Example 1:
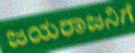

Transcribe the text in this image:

ಜಯರಾಜನಿಗೆ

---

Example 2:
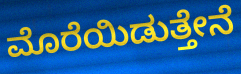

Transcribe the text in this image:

ಮೊರೆಯಿಡುತ್ತೇನೆ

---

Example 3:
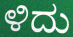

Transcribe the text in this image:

ಳಿದು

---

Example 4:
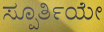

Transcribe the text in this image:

ಸ್ಪೂರ್ತಿಯೇ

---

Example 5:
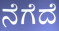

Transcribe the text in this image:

ನೆಗೆದೆ